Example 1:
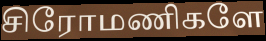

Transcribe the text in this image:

சிரோமணிகளே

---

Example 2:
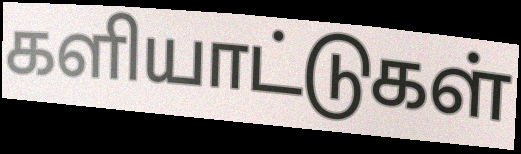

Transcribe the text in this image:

களியாட்டுகள்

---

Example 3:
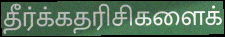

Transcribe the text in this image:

தீர்க்கதரிசிகளைக்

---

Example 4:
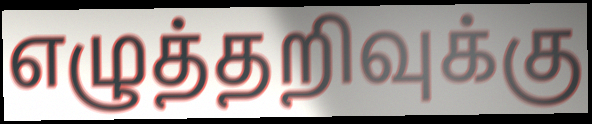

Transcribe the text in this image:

எழுத்தறிவுக்கு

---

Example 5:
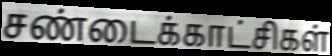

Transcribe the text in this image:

சண்டைக்காட்சிகள்